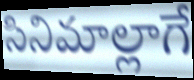
సినిమాల్లాగే